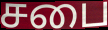
சபை